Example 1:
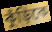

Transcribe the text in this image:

কুঁড়িকে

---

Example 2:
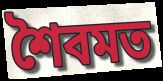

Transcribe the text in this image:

শৈবমত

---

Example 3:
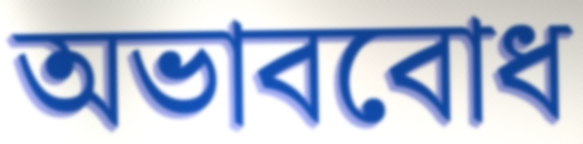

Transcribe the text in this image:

অভাববোধ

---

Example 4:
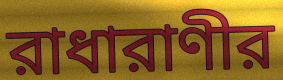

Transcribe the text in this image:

রাধারাণীর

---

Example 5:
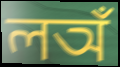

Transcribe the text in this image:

লঅঁ